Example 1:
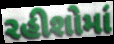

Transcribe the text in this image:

રહીશોમાં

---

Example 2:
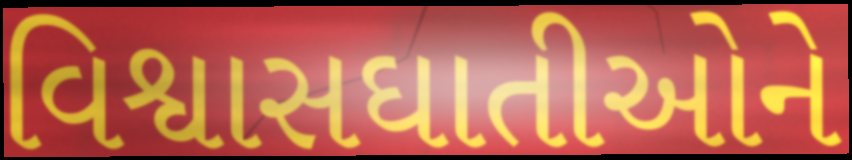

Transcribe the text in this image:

વિશ્વાસઘાતીઓને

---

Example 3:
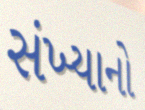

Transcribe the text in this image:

સંખ્યાનો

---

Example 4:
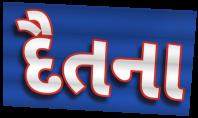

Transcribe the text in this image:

દૈતના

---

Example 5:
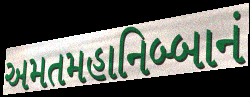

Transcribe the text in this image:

અમતમહાનિબ્બાનં